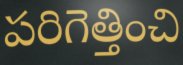
పరిగెత్తించి